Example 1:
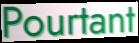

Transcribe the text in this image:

Pourtant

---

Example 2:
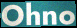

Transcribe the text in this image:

Ohno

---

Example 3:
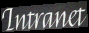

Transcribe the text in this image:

Intranet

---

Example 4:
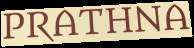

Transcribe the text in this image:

PRATHNA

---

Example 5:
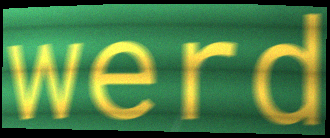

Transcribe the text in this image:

werd